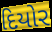
દિયોર